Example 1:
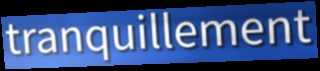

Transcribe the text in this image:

tranquillement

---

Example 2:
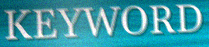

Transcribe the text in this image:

KEYWORD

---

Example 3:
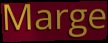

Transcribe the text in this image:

Marge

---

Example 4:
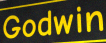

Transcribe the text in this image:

Godwin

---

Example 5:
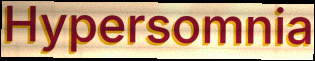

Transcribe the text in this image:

Hypersomnia